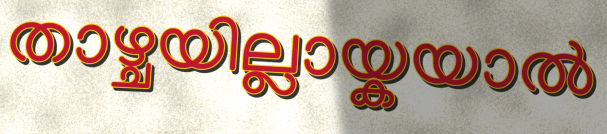
താഴ്ചയില്ലായ്കയാൽ